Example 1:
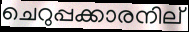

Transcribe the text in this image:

ചെറുപ്പക്കാരനില്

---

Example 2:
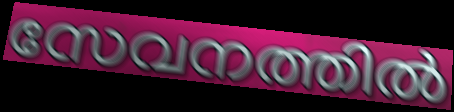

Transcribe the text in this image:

സേവനത്തിൽ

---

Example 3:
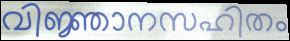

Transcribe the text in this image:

വിജ്ഞാനസഹിതം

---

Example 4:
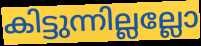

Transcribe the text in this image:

കിട്ടുന്നില്ലല്ലോ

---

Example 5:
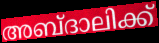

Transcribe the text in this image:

അബ്ദാലിക്ക്